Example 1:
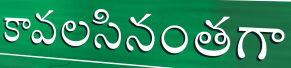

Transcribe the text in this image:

కావలసినంతగా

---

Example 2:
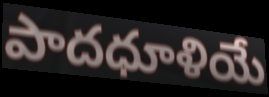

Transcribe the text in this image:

పాదధూళియే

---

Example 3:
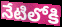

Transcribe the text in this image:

నేటిలోకి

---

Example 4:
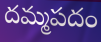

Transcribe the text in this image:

దమ్మపదం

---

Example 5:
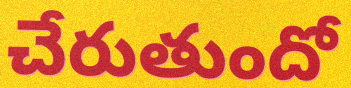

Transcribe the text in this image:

చేరుతుందో